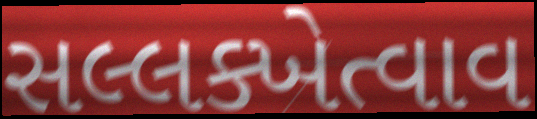
સલ્લક્ખેત્વાવ